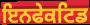
ਇਨਫੇਕਟਿਡ